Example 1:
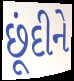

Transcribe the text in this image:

છૂંદીને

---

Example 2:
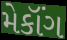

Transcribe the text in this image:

મેકૉંગ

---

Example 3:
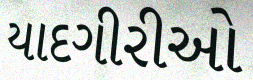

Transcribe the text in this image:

યાદગીરીઓ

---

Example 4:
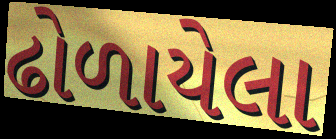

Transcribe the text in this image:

ઢોળાયેલા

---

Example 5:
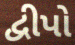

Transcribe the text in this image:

દ્વીપો